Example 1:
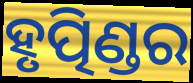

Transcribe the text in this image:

ହୃତ୍ପିଣ୍ଡର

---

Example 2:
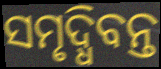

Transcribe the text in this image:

ସମୃଦ୍ଧିବନ୍ତ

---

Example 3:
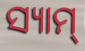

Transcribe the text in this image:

ସ୍ୟାମ୍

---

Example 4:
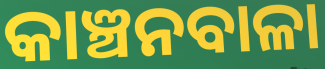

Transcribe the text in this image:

କାଞ୍ଚନବାଳା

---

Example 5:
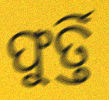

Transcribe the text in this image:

ଫୁର୍ତ୍ତି